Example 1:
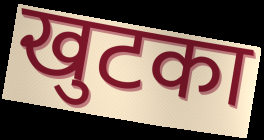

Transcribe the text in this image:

खुटका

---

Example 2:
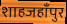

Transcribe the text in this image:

शाहजहाँपुर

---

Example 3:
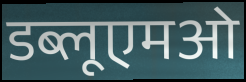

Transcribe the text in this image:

डब्लूएमओ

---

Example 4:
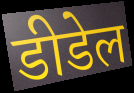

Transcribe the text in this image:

डीडेल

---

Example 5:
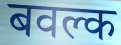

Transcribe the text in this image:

बवल्क